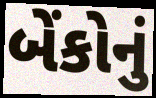
બેંકોનું